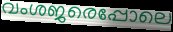
വംശജരെപ്പോലെ